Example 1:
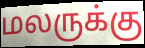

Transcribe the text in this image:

மலருக்கு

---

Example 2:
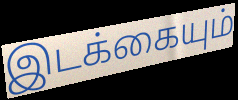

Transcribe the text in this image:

இடக்கையும்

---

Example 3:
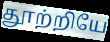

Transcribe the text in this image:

தூற்றியே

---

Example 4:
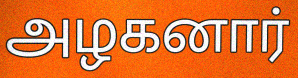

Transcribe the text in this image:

அழகனார்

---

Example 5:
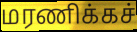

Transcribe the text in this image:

மரணிக்கச்